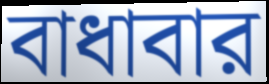
বাধাবার